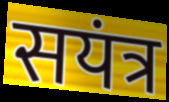
सयंत्र